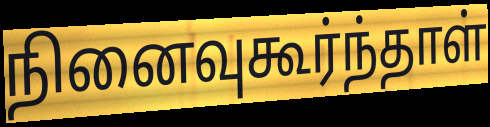
நினைவுகூர்ந்தாள்